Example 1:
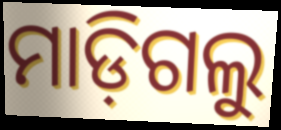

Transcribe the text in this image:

ମାଡ଼ିଗଲୁ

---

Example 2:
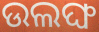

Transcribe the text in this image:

ଉଲଙ୍ଘ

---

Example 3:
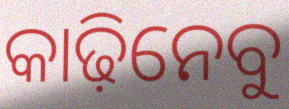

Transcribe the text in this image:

କାଢ଼ିନେବୁ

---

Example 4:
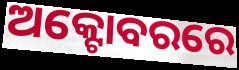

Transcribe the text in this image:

ଅକ୍ଟୋବରରେ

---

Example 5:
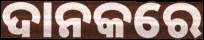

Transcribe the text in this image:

ଦାନକରେ